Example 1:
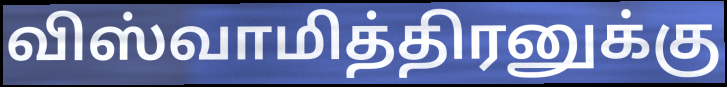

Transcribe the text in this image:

விஸ்வாமித்திரனுக்கு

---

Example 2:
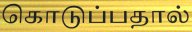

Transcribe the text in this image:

கொடுப்பதால்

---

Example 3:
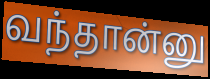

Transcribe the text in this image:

வந்தான்னு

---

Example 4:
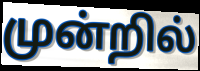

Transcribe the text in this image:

முன்றில்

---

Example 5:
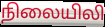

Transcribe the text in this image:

நிலையிலி